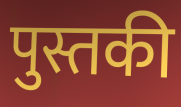
पुस्तकी